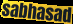
sabhasad